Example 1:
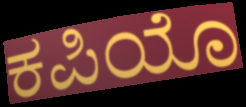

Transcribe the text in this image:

ಕಪಿಯೊ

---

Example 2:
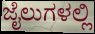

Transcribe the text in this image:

ಜೈಲುಗಳಲ್ಲಿ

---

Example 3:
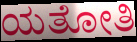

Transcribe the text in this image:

ಯತೋತಿ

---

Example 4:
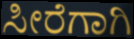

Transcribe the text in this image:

ಸೀರೆಗಾಗಿ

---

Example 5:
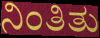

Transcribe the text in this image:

ನಿಂತಿತು